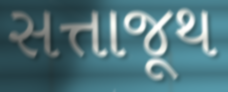
સત્તાજૂથ